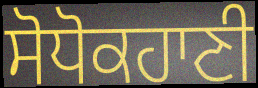
ਸੋਧੋਕਹਾਣੀ